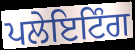
ਪਲੇਇਟਿੰਗ